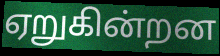
ஏறுகின்றன